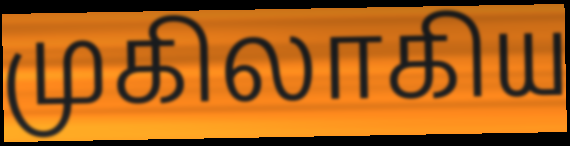
முகிலாகிய